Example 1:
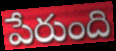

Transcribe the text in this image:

పేరుంది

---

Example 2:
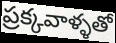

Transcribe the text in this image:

ప్రక్కవాళ్ళతో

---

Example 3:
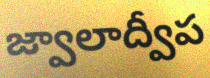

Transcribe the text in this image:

జ్వాలాద్వీప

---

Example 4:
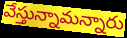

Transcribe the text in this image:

వేస్తున్నామన్నారు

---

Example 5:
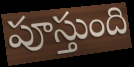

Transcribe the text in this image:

పూస్తుంది